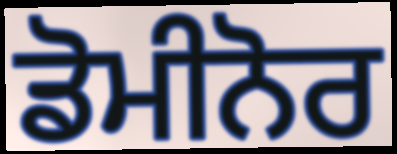
ਡੋਮੀਨੋਰ